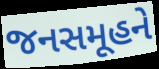
જનસમૂહને